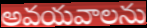
అవయవాలను